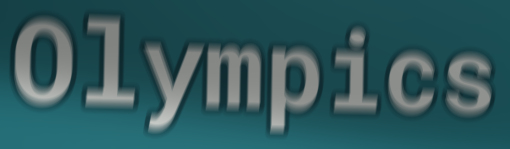
Olympics